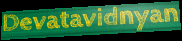
Devatavidnyan